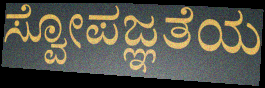
ಸ್ವೋಪಜ್ಞತೆಯ